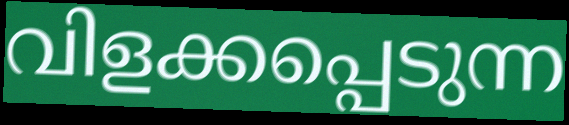
വിളക്കപ്പെടുന്ന